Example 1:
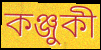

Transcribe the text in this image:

কঞ্জুকী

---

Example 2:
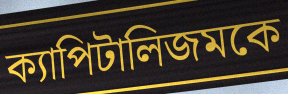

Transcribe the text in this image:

ক্যাপিটালিজমকে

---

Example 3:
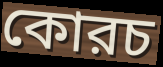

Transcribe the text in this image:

কোরচ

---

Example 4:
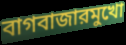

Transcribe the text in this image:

বাগবাজারমুখো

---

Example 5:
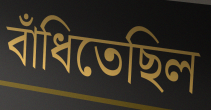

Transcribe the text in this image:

বাঁধিতেছিল